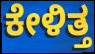
ಕೇಳಿತ್ತ